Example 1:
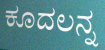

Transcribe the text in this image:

ಕೂದಲನ್ನ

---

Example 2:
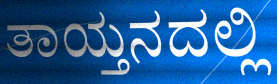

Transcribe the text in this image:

ತಾಯ್ತನದಲ್ಲಿ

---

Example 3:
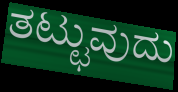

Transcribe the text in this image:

ತಟ್ಟುವುದು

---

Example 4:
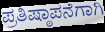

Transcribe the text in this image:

ಪ್ರತಿಷ್ಠಾಪನೆಗಾಗಿ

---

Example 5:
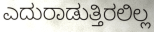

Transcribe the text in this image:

ಎದುರಾಡುತ್ತಿರಲಿಲ್ಲ